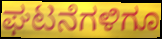
ಘಟನೆಗಳಿಗೂ